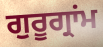
ਗੁਰੂਗ੍ਰਾਂਮ